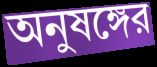
অনুষঙ্গের